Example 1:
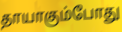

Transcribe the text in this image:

தாயாகும்போது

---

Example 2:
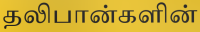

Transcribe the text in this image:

தலிபான்களின்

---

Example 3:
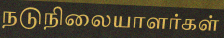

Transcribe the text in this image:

நடுநிலையாளர்கள்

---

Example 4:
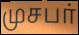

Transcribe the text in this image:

முசபர்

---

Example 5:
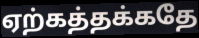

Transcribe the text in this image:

ஏற்கத்தக்கதே